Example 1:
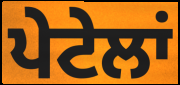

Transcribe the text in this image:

ਪੇਟੇਲਾਂ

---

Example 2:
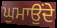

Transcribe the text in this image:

ਘੁਮਾਉਂਦੇ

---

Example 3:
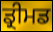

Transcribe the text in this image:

ਡ੍ਰੀਮਡ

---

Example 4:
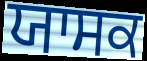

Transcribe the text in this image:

ਯਾਸਕ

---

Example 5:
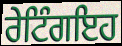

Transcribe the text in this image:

ਰੇਟਿੰਗਇਹ